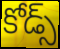
కోడ్స్